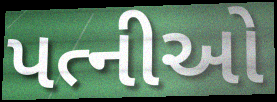
પત્નીઓ